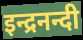
इन्द्रनन्दी